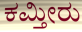
ಕಮ್ತೀರು